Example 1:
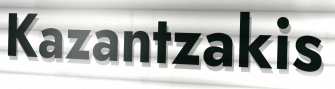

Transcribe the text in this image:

Kazantzakis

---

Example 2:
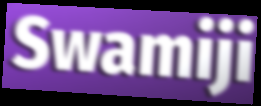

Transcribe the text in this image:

Swamiji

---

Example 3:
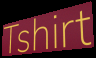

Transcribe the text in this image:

Tshirt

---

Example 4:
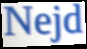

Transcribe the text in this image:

Nejd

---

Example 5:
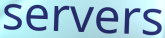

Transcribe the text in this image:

servers